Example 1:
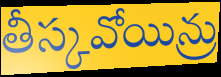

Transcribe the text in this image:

తీస్కవోయిన్రు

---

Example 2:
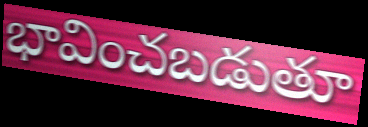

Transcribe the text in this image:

భావించబడుతూ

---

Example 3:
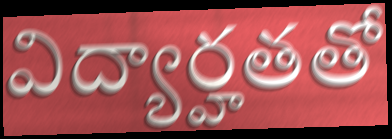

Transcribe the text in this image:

విద్యార్హతతో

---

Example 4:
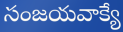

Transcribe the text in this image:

సంజయవాక్యే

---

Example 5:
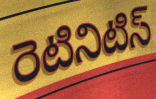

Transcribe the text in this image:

రెటినిటిస్